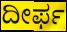
ದೀರ್ಫ